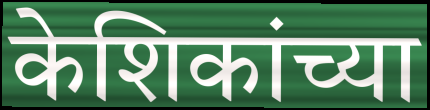
केशिकांच्या